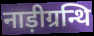
नाड़ीग्रन्थि